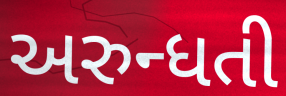
અરુન્ધતી